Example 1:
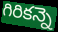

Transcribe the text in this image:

గిరికన్నె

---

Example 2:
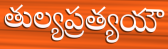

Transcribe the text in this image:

తుల్యప్రత్యయౌ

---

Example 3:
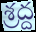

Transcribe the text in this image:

శ్రద్ద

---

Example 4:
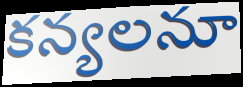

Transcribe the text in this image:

కన్యలనూ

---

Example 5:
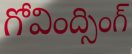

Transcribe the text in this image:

గోవింద్సింగ్